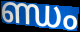
ണ്ഡം